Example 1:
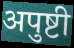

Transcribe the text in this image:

अपुष्टी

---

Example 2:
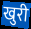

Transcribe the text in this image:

खुरी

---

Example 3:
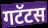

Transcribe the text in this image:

गटॅटस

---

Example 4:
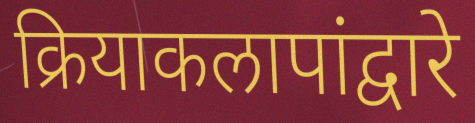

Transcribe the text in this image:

क्रियाकलापांद्वारे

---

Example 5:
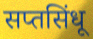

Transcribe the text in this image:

सप्तसिंधू